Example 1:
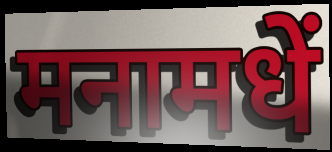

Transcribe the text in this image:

मनामधें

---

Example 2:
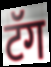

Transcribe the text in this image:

टॅग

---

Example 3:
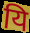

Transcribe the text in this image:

यि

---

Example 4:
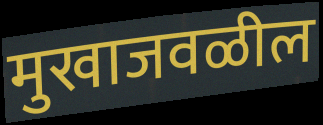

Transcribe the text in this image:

मुखाजवळील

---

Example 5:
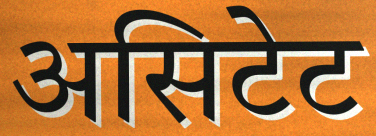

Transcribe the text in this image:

असिटेट